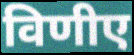
विणीए